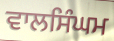
ਵਾਲਸਿੰਘਮ